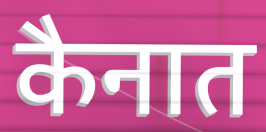
कैनात